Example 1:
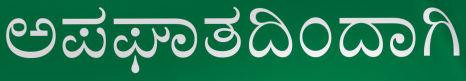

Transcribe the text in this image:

ಅಪಘಾತದಿಂದಾಗಿ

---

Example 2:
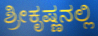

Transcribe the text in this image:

ಶ್ರೀಕೃಷ್ಣನಲ್ಲಿ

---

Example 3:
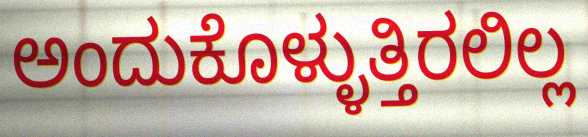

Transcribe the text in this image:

ಅಂದುಕೊಳ್ಳುತ್ತಿರಲಿಲ್ಲ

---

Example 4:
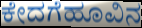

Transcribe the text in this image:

ಕೇದಗೆಹೂವಿನ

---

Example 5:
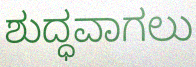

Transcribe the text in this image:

ಶುದ್ಧವಾಗಲು